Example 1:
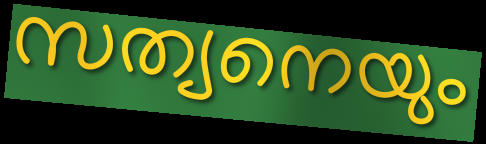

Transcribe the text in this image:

സത്യനെയും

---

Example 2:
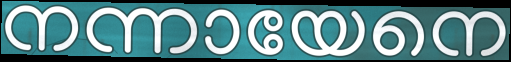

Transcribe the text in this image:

നന്നായേനെ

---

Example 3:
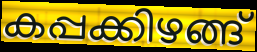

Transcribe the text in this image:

കപ്പക്കിഴങ്ങ്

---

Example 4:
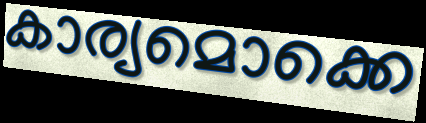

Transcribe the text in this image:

കാര്യമൊക്കെ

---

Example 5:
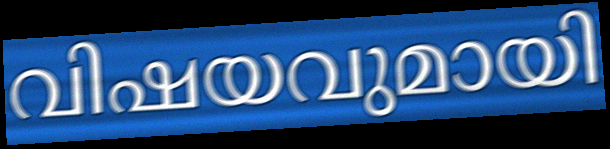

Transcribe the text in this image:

വിഷയവുമായി